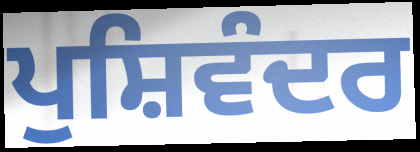
ਪੁਸ਼ਿਵੰਦਰ